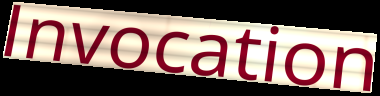
Invocation